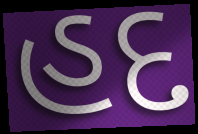
હદ